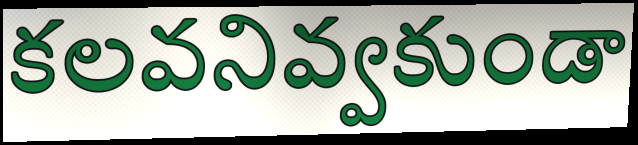
కలవనివ్వకుండా